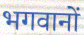
भगवानों